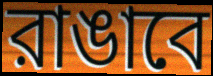
রাঙাবে